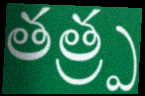
తత్ర్ప